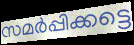
സമർപ്പിക്കട്ടെ